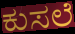
ಕುಸಲೆ